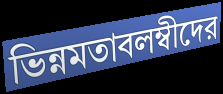
ভিন্নমতাবলম্বীদের